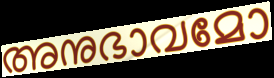
അനുഭാവമോ